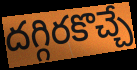
దగ్గిరకొచ్చే